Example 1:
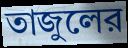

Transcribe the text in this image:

তাজুলের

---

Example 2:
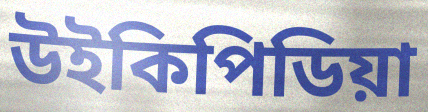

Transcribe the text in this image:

উইকিপিডিয়া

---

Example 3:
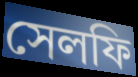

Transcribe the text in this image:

সেলফি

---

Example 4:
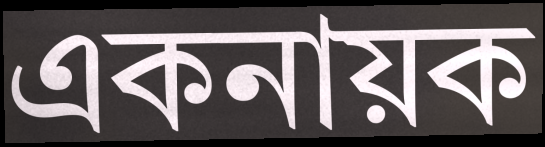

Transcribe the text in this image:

একনায়ক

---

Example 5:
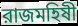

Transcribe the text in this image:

রাজমহিষী